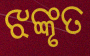
ଝଙ୍କୃତ